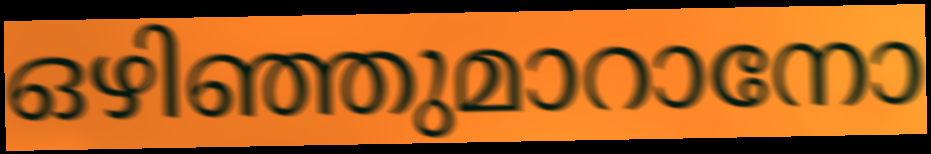
ഒഴിഞ്ഞുമാറാനോ